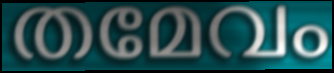
തമേവം